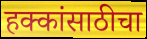
हक्कांसाठीचा